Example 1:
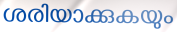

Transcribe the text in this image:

ശരിയാക്കുകയും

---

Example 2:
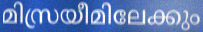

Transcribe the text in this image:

മിസ്രയീമിലേക്കും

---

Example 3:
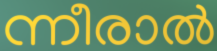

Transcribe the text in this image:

ന്നീരാൽ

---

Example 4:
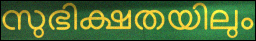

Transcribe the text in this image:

സുഭിക്ഷതയിലും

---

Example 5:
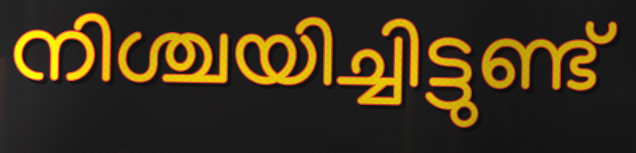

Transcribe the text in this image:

നിശ്ചയിച്ചിട്ടുണ്ട്